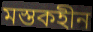
মস্তকহীন